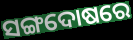
ସଙ୍ଗଦୋଷରେ